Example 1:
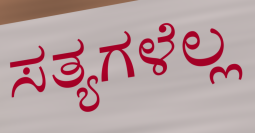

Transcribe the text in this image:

ಸತ್ಯಗಳೆಲ್ಲ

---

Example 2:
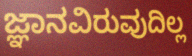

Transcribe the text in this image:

ಜ್ಞಾನವಿರುವುದಿಲ್ಲ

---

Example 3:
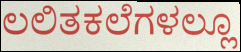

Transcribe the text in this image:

ಲಲಿತಕಲೆಗಳಲ್ಲೂ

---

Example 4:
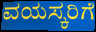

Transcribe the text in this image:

ವಯಸ್ಕರಿಗೆ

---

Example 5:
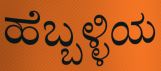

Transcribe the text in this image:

ಹೆಬ್ಬಳ್ಳಿಯ